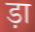
ड़ा